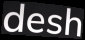
desh